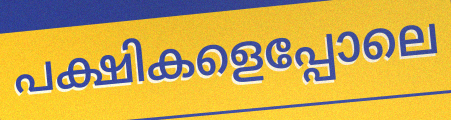
പക്ഷികളെപ്പോലെ